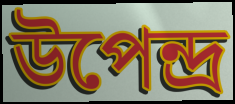
উপেন্দ্ৰ